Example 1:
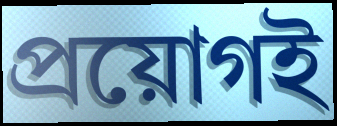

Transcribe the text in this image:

প্রয়োগই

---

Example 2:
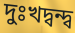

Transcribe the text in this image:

দুঃখদ্বন্দ্ব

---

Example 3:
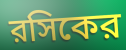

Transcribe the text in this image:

রসিকের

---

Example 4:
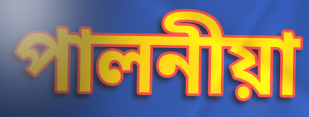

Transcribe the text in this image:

পালনীয়া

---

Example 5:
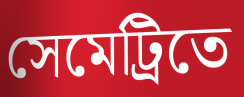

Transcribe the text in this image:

সেমেট্রিতে